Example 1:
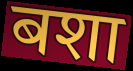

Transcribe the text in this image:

बशा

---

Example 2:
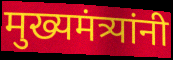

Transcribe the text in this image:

मुख्यमंत्र्यांनी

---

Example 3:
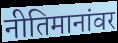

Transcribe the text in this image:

नीतिमानांवर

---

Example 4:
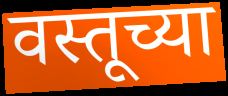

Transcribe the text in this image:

वस्तूच्या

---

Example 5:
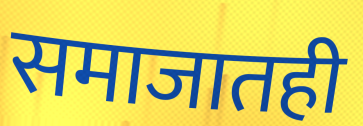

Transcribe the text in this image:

समाजातही